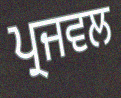
ਪ੍ਰਜਵਲ